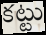
కట్టు